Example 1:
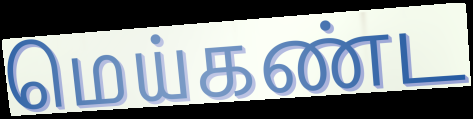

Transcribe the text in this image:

மெய்கண்ட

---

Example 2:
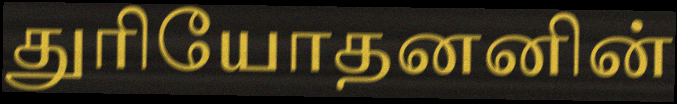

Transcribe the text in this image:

துரியோதனனின்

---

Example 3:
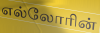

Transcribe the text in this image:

எல்லோரின்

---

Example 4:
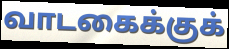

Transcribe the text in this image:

வாடகைக்குக்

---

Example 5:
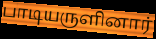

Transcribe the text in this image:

பாடியருளினார்